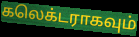
கலெக்டராகவும்